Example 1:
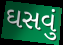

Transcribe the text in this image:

ઘસવું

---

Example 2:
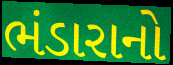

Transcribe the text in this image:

ભંડારાનો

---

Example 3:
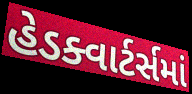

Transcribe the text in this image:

હેડક્વાર્ટર્સમાં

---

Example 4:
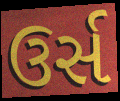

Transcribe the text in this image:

ઉર્સ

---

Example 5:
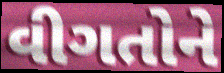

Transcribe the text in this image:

વીગતોને